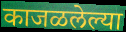
काजळलेल्या